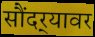
सौंदर्यावर